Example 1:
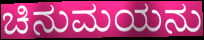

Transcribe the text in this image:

ಚಿನುಮಯನು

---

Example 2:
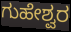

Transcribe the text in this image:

ಗುಹೇಶ್ವರ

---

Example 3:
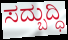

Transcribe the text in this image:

ಸದ್ಬುದ್ಧಿ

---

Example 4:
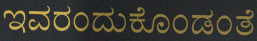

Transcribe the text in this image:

ಇವರಂದುಕೊಂಡಂತೆ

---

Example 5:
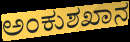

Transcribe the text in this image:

ಅಂಕುಶಖಾನ